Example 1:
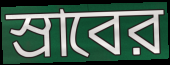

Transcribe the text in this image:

স্রাবের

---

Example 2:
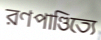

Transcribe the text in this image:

রণপাণ্ডিত্যে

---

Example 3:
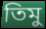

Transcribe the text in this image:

তিমু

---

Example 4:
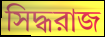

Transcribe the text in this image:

সিদ্ধরাজ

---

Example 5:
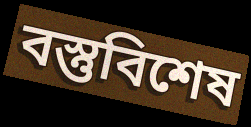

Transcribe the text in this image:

বস্তুবিশেষ